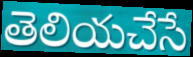
తెలియచేసే